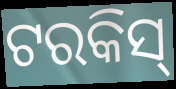
ଟରକିସ୍